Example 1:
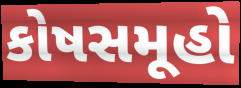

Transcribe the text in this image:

કોષસમૂહો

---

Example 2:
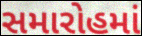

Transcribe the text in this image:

સમારોહમાં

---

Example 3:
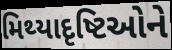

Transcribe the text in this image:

મિથ્યાદૃષ્ટિઓને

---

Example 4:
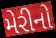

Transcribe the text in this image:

મેરીનો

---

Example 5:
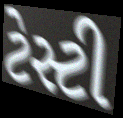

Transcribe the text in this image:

ટેસ્ટી